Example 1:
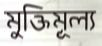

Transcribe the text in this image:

মুক্তিমূল্য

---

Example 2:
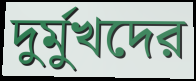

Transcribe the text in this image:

দুর্মুখদের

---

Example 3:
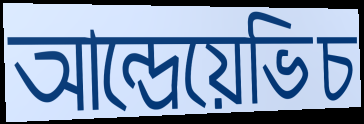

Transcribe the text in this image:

আন্দ্রেয়েভিচ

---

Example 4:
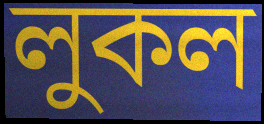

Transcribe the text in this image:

লুকল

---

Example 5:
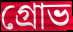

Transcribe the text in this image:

গ্রোভ